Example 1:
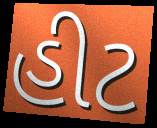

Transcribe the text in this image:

હીટ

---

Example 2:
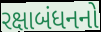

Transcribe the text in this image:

રક્ષાબંધનનો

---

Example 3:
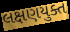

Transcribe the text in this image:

લક્ષણયુક્ત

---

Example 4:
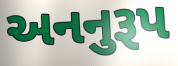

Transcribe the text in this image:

અનનુરૂપ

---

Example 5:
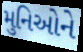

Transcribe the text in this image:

મુનિઓને